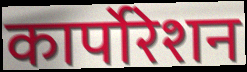
कार्पोरेशन